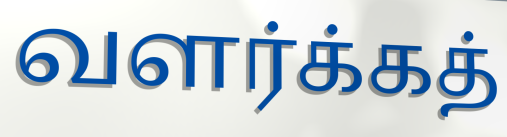
வளர்க்கத்